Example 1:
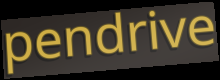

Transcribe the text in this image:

pendrive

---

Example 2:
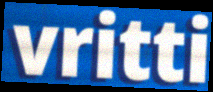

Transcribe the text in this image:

vritti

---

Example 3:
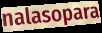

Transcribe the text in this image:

nalasopara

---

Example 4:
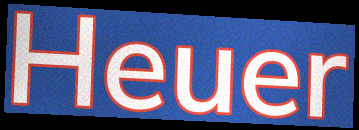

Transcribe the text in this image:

Heuer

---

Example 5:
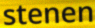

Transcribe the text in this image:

stenen